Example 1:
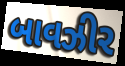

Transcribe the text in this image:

બાવઝીર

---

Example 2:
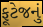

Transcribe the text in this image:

ફૂટેજનું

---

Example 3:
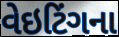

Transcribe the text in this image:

વેઇટિંગના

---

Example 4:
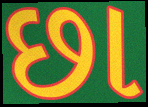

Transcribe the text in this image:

છા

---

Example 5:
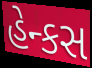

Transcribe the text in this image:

હેન્કસ